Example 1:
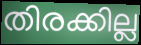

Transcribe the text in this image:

തിരക്കില്ല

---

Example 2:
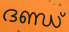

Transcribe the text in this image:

ദണ്ഡ്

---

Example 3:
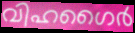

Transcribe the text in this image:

വിഹഗൈർ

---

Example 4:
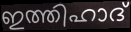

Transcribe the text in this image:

ഇത്തിഹാദ്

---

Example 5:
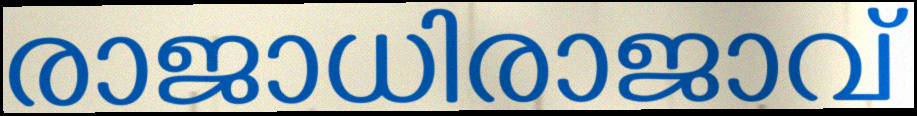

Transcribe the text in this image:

രാജാധിരാജാവ്